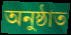
অনুষ্ঠাত